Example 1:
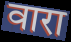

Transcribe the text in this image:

वारा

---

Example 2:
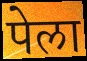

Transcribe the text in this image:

पेला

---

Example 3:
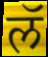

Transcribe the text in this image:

लॅ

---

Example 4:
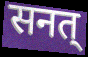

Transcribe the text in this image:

सनत्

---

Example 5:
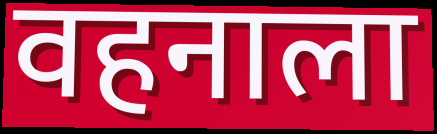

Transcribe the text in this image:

वहनाला